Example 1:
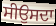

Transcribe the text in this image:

ਸੀਉਸਦਾ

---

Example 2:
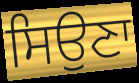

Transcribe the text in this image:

ਸਿਉਣਾ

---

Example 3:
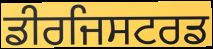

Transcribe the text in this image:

ਡੀਰਜਿਸਟਰਡ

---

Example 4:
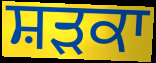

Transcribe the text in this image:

ਸ਼ੜਕਾ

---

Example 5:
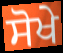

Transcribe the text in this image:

ਸੋਖੇ